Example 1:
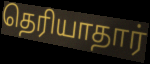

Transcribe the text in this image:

தெரியாதார்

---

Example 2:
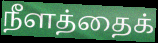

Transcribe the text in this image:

நீளத்தைக்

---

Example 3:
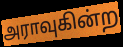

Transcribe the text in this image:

அராவுகின்ற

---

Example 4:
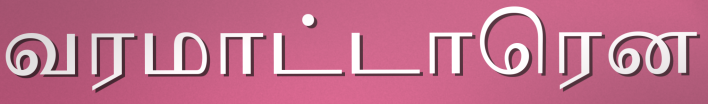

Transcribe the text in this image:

வரமாட்டாரென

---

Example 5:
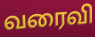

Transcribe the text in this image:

வரைவி